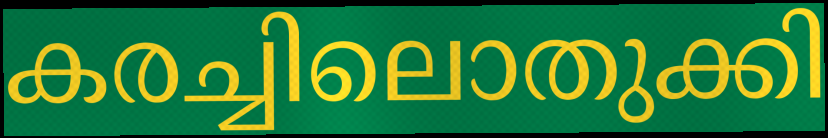
കരച്ചിലൊതുക്കി